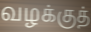
வழக்குத்